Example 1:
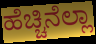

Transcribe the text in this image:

ಹೆಚ್ಚಿನೆಲ್ಲಾ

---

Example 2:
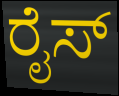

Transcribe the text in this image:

ರೈಸ್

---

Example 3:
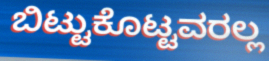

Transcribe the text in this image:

ಬಿಟ್ಟುಕೊಟ್ಟವರಲ್ಲ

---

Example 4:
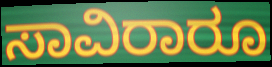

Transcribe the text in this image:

ಸಾವಿರಾರೂ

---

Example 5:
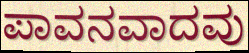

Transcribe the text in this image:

ಪಾವನವಾದವು